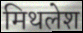
मिथलेश